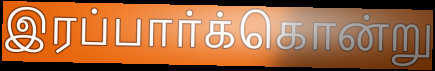
இரப்பார்க்கொன்று